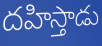
దహిస్తాడు